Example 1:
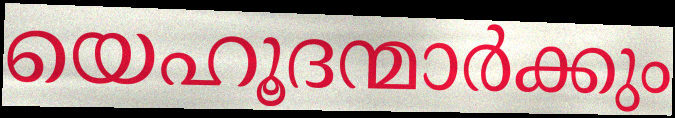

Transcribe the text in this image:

യെഹൂദന്മാർക്കും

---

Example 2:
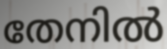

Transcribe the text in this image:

തേനിൽ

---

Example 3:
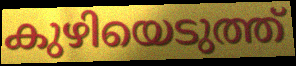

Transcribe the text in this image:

കുഴിയെടുത്ത്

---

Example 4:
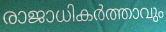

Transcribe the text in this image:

രാജാധികർത്താവും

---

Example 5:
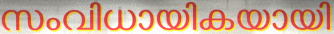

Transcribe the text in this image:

സംവിധായികയായി